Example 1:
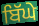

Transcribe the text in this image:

ਬਿੱਘੇ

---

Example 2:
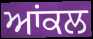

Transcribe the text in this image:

ਆਂਕਲ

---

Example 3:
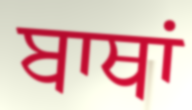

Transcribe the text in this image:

ਬਾਥਾਂ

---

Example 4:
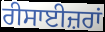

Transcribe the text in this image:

ਰੀਸਾਈਜ਼ਰਾਂ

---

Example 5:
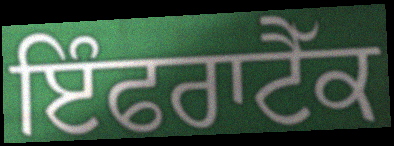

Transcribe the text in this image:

ਇੰਫਰਾਟੈੱਕ